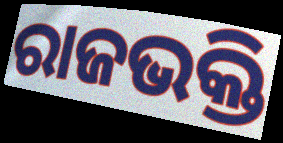
ରାଜଭକ୍ତି